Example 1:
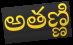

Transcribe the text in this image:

అతణ్ణి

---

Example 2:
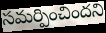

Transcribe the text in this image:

సమర్పించిందని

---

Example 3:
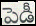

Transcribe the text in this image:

పెడీ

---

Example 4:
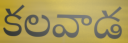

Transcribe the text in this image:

కలవాడ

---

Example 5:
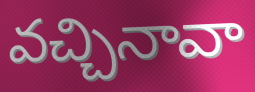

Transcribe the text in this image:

వచ్చినావా